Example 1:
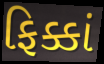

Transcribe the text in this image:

ફિક્કાં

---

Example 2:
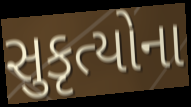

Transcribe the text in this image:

સુકૃત્યોના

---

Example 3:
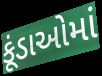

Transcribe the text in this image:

કૂંડાઓમાં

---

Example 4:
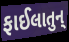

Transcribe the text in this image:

ફાઈલાતુન્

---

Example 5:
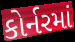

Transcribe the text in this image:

કોર્નરમાં